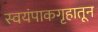
स्वयंपाकगृहातून